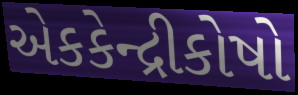
એકકેન્દ્રીકોષો